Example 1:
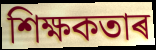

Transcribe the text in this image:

শিক্ষকতাৰ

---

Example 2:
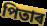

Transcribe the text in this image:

পিতাৰ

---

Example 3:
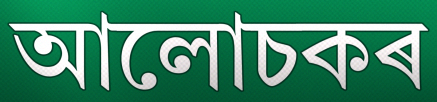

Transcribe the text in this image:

আলোচকৰ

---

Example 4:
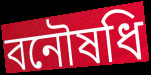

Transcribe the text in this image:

বনৌষধি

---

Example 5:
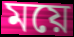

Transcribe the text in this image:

ময়ে